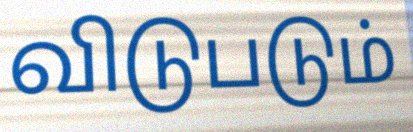
விடுபடும்